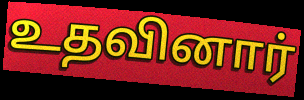
உதவினார்